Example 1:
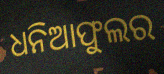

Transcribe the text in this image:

ଧନିଆଫୁଲର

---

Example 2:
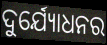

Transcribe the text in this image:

ଦୁର୍ଯ୍ୟୋଧନର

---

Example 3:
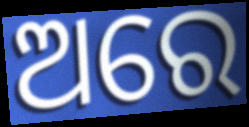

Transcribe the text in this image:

ଅରେ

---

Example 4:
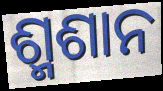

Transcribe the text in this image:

ଶ୍ମଶାନ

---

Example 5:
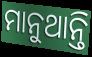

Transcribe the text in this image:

ମାନୁଥାନ୍ତି